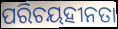
ପରିଚୟହୀନତା